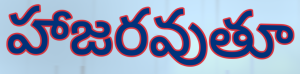
హాజరవుతూ